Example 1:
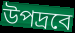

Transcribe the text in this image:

উপদ্রবে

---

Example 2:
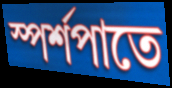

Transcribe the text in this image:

স্পর্শপাতে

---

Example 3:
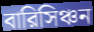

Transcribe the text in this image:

বারিসিঞ্চন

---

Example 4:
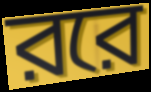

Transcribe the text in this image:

ররে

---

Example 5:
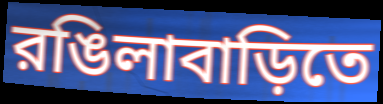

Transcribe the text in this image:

রঙিলাবাড়িতে